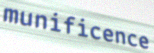
munificence